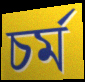
চর্ম